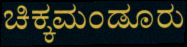
ಚಿಕ್ಕಮಂಡೂರು